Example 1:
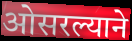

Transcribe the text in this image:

ओसरल्याने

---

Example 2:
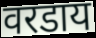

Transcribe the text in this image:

वरडाय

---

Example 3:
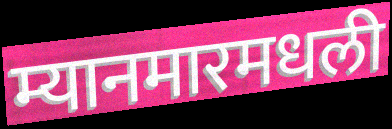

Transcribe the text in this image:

म्यानमारमधली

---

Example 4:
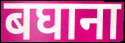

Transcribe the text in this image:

बघाना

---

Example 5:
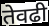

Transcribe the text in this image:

तेवढी